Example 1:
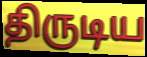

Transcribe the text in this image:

திருடிய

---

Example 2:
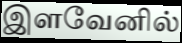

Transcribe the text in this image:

இளவேனில்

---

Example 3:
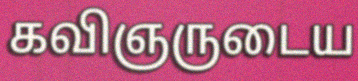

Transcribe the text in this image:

கவிஞருடைய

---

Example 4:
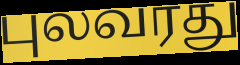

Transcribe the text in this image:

புலவரது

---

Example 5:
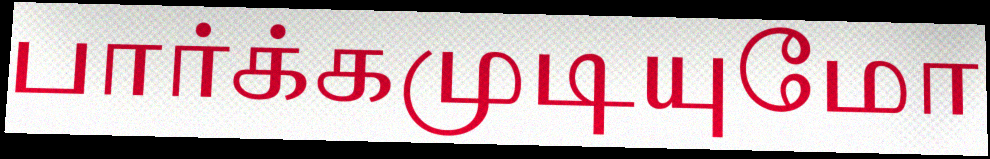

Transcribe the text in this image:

பார்க்கமுடியுமோ